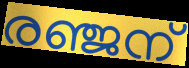
രഞ്ജന്